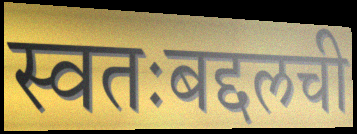
स्वतःबद्दलची